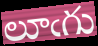
లూఁగు